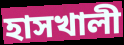
হাসখালী